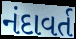
નંદાવર્ત